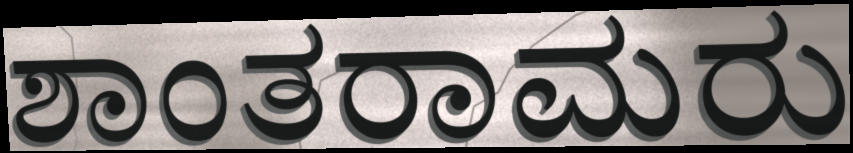
ಶಾಂತರಾಮರು